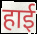
हाई